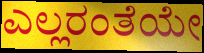
ಎಲ್ಲರಂತೆಯೇ